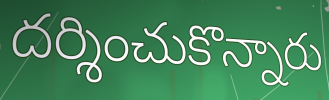
దర్శించుకొన్నారు